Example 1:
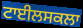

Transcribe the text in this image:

ਟਾਈਲਸਕਲਾ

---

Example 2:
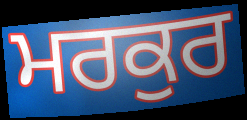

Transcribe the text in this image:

ਮਰਕੁਰ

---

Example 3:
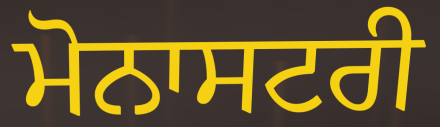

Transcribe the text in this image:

ਮੋਨਾਸਟਰੀ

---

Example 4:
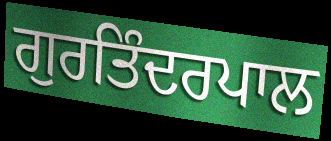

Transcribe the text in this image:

ਗੁਰਤਿੰਦਰਪਾਲ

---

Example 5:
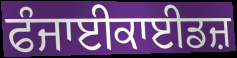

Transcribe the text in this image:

ਫੰਜਾਈਕਾਈਡਜ਼